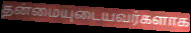
தன்மையுடையவர்களாக